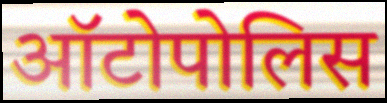
ऑटोपोलिस